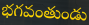
భగవంతుండు